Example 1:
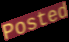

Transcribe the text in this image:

Posted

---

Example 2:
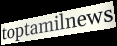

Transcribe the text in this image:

toptamilnews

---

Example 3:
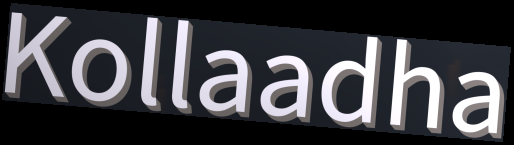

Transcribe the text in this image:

Kollaadha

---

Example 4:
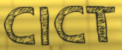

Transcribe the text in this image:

CICT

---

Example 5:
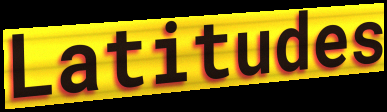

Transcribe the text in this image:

Latitudes